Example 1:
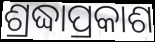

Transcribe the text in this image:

ଶ୍ରଦ୍ଧାପ୍ରକାଶ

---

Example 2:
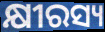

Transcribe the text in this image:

କ୍ଷୀରସ୍ୟ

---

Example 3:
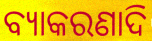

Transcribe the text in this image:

ବ୍ୟାକରଣାଦି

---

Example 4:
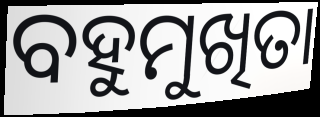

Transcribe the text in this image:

ବହୁମୁଖିତା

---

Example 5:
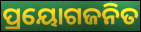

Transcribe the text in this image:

ପ୍ରୟୋଗଜନିତ